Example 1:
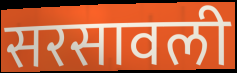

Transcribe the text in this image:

सरसावली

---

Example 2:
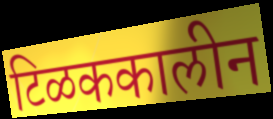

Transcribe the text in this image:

टिळककालीन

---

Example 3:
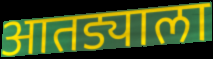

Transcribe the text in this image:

आतड्याला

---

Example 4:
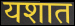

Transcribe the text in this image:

यशात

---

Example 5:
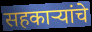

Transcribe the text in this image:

सहकाऱ्यांचे